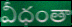
వీధంతా